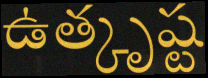
ఉత్కృష్ట